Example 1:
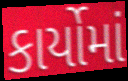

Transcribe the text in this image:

કાર્યોમાં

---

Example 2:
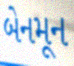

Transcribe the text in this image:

બેનમૂન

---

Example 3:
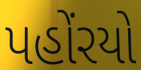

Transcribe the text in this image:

પહોંરયો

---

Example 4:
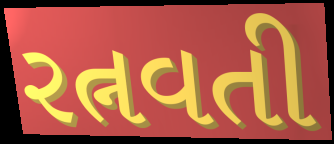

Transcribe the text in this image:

રત્નવતી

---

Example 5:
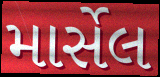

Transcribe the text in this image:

માર્સેલ